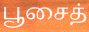
பூசைத்